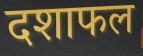
दशाफल